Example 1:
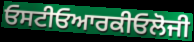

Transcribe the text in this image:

ਓਸਟੀਓਆਰਕੀਓਲੋਜੀ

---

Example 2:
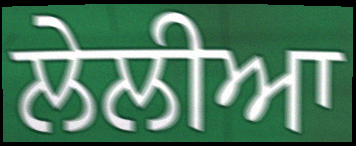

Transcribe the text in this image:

ਲੇਲੀਆ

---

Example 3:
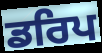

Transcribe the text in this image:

ਡਰਿਪ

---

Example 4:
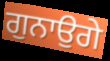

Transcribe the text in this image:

ਗੁਨਾਉਗੇ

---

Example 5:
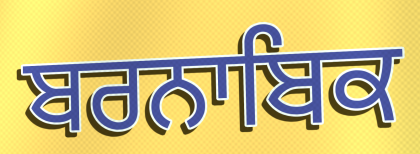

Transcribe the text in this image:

ਬਰਨਾਬਿਕ